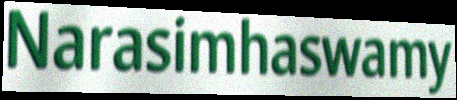
Narasimhaswamy